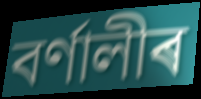
বৰ্ণালীৰ